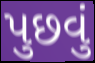
પુછવું